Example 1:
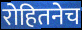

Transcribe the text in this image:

रोहितनेच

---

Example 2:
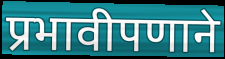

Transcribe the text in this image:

प्रभावीपणाने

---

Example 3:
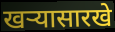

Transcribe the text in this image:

खऱ्यासारखे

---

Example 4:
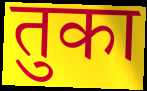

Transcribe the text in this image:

तुका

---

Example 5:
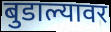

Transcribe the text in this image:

बुडाल्यावर